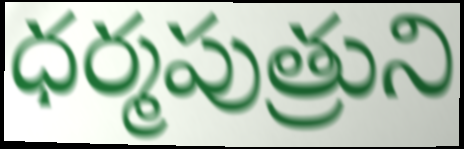
ధర్మపుత్రుని